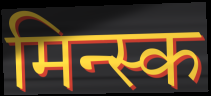
मिन्स्क